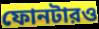
ফোনটারও